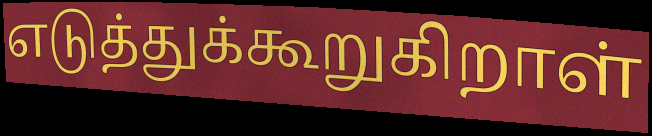
எடுத்துக்கூறுகிறாள்